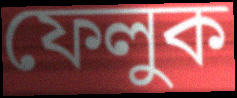
ফেলুক